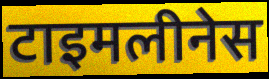
टाइमलीनेस